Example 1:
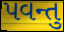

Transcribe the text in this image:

પવન્તુ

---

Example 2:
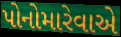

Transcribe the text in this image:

પોનોમારેવાએ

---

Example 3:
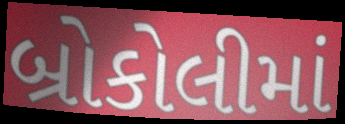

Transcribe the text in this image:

બ્રોકોલીમાં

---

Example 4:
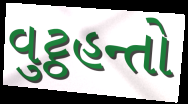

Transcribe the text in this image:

વુટ્ઠહન્તો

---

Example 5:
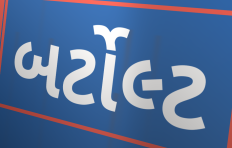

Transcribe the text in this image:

બર્ટોલ્ટ